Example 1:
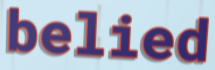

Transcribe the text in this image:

belied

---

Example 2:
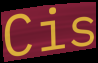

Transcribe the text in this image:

Cis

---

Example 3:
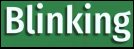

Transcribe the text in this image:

Blinking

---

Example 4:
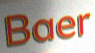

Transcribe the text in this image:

Baer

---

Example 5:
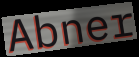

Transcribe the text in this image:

Abner